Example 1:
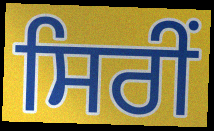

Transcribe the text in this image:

ਸਿਰੀਂ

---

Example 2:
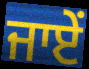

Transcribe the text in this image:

ਜਾਏਂ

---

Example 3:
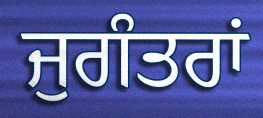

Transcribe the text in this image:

ਜੁਗੰਤਰਾਂ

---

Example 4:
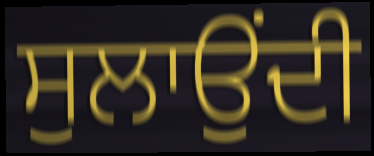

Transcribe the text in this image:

ਸੁਲਾਉਂਦੀ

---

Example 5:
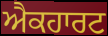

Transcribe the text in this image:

ਐਕਹਾਰਟ